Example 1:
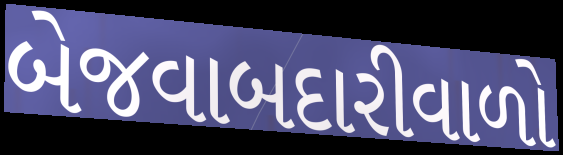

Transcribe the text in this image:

બેજવાબદારીવાળો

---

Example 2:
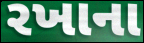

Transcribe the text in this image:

રખાના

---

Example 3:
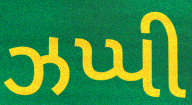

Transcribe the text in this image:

ઝપ્પી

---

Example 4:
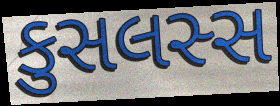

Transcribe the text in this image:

કુસલસ્સ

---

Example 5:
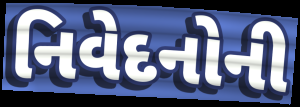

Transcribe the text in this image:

નિવેદનોની